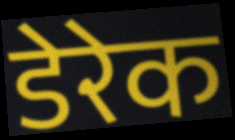
डेरेक